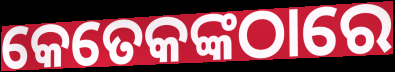
କେତେକଙ୍କଠାରେ